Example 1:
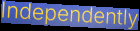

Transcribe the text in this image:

Independently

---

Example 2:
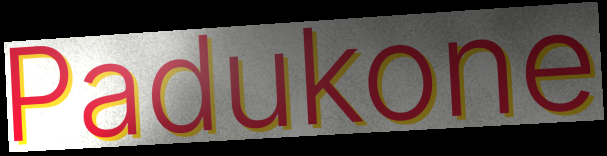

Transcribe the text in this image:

Padukone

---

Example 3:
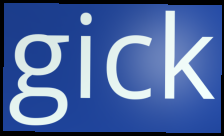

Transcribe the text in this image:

gick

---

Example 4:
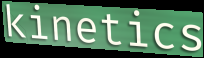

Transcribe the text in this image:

kinetics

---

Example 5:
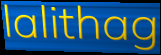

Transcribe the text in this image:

lalithag